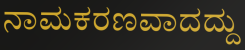
ನಾಮಕರಣವಾದದ್ದು